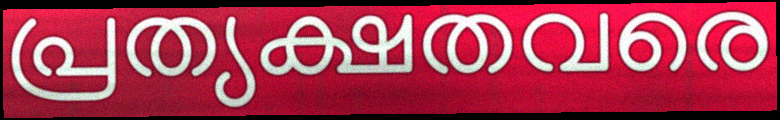
പ്രത്യക്ഷതവരെ